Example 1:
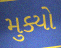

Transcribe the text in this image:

મુક્યો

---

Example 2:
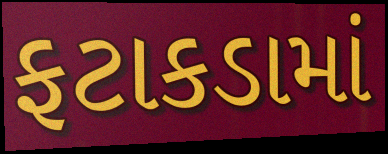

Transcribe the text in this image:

ફટાકડામાં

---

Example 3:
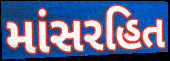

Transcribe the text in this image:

માંસરહિત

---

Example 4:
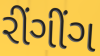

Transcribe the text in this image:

રીંગીંગ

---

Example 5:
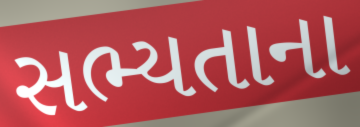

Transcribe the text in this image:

સભ્યતાના